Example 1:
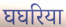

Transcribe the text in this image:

घघरिया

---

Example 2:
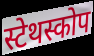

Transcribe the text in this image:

स्टेथस्कोप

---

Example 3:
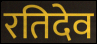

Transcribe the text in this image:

रतिदेव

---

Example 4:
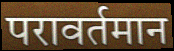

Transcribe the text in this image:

परावर्तमान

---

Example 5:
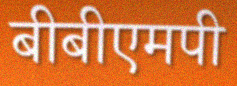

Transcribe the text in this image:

बीबीएमपी